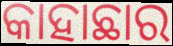
କାହାଛାର